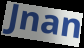
Jnan